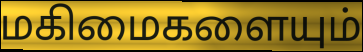
மகிமைகளையும்